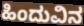
ಹಿಂದುವಿನ